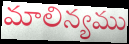
మాలిన్యము